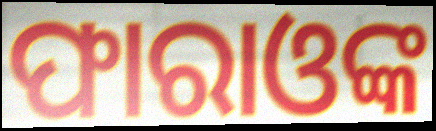
ଫାରାଓଙ୍କ